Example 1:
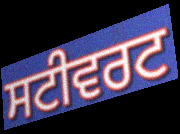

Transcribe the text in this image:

ਸਟੀਵਰਟ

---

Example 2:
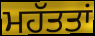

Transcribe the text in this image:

ਮਹੱਤਤਾਂ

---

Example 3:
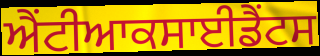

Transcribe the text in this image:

ਐਂਟੀਆਕਸਾਈਡੈਂਟਸ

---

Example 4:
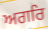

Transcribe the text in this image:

ਅਗਰਿ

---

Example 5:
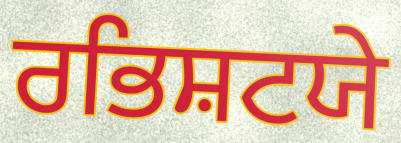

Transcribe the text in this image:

ਰਭਿਸ਼ਟਯੇ